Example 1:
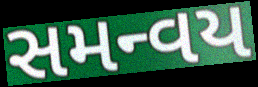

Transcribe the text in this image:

સમન્વય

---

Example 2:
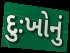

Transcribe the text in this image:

દુઃખોનું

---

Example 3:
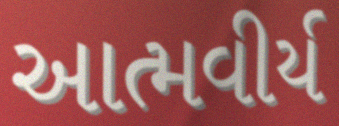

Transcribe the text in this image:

આત્મવીર્ય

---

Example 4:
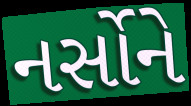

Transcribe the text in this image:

નર્સોને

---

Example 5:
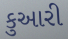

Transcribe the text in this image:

કુઆરી